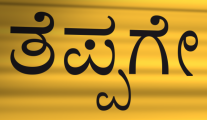
ತೆಪ್ಪಗೇ